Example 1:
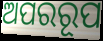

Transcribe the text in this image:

ଅପରରୂପ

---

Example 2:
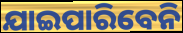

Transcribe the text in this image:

ଯାଇପାରିବେନି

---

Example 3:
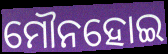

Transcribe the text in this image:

ମୌନହୋଇ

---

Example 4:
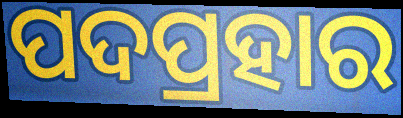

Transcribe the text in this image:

ପଦପ୍ରହାର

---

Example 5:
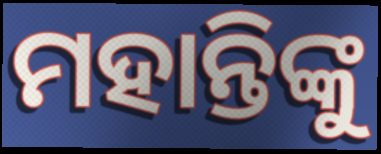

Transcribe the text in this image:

ମହାନ୍ତିଙ୍କୁ